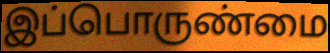
இப்பொருண்மை